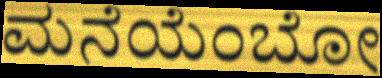
ಮನೆಯೆಂಬೋ